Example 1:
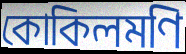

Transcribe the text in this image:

কোকিলমণি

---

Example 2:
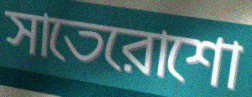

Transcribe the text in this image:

সাতেরোশো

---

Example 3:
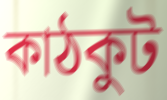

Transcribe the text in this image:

কাঠকুট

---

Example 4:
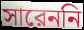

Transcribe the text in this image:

সারেননি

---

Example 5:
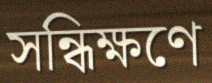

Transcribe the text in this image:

সন্ধিক্ষণে